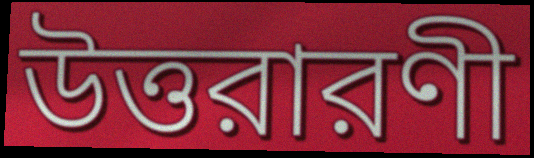
উত্তরারণী